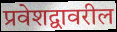
प्रवेशद्वावरील